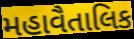
મહાવૈતાલિક